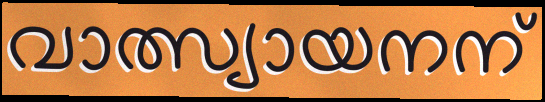
വാത്സ്യായനന്